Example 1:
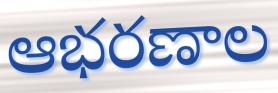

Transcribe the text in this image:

ఆభరణాల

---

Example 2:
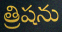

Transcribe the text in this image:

త్రిషను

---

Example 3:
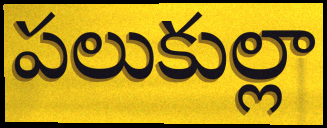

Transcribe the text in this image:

పలుకుల్లా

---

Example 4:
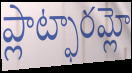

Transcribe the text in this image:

ప్లాట్ఫారమ్లో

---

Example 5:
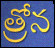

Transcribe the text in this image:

త్రోన